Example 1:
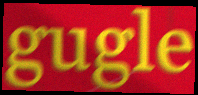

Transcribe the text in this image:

gugle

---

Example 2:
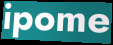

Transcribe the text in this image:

ipome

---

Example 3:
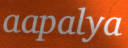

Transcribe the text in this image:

aapalya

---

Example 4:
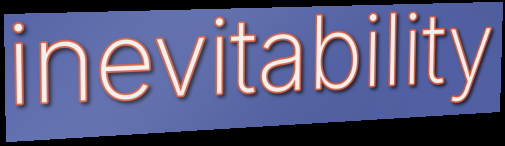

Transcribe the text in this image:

inevitability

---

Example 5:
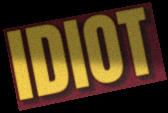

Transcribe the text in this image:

IDIOT